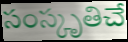
సంస్కృతిచే